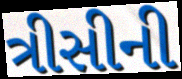
ત્રીસીની